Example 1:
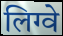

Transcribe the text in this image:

लिग्वे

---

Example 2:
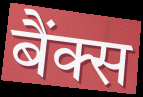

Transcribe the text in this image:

बैंक्‍स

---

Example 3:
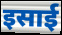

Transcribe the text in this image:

इसाई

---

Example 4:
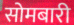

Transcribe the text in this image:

सोमबारी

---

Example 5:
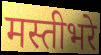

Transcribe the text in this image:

मस्तीभरे